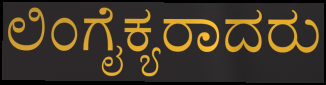
ಲಿಂಗೈಕ್ಯರಾದರು